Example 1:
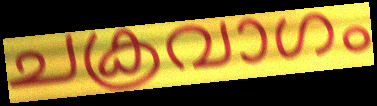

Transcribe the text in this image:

ചക്രവാഗം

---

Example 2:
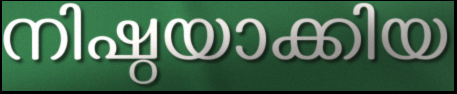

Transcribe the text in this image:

നിഷ്ഠയാക്കിയ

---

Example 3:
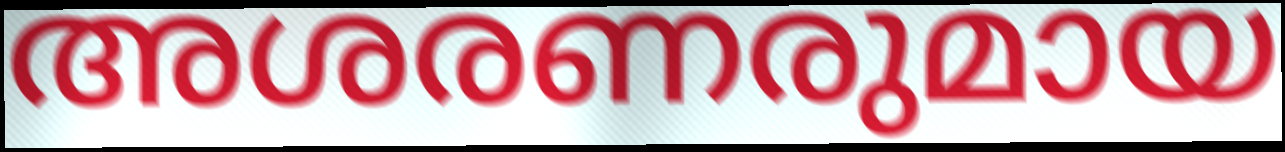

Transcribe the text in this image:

അശരണരുമായ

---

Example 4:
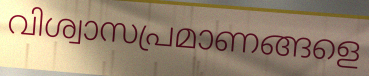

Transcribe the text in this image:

വിശ്വാസപ്രമാണങ്ങളെ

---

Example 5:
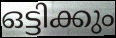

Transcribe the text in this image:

ഒട്ടിക്കും